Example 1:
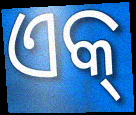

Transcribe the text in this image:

ଏକ୍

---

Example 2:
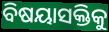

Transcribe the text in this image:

ବିଷୟାସକ୍ତିକୁ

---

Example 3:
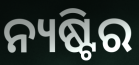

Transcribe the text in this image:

ନ୍ୟଷ୍ଟିର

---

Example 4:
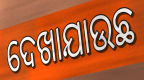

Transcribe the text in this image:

ଦେଖାଯାଉଛ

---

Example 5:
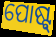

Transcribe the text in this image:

ପୋଷ୍ଟ୍